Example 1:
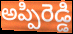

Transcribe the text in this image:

అప్పిరెడ్డి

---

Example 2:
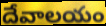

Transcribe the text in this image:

దేవాలయం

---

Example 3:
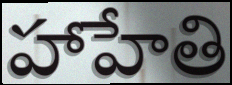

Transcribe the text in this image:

హాహేతి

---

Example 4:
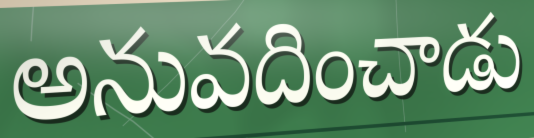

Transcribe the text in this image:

అనువదించాడు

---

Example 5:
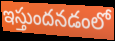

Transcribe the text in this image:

ఇస్తుందనడంలో